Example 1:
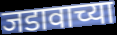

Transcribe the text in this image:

जडावाच्या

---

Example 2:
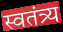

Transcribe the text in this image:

स्वतंत्र्य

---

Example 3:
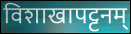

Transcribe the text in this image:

विशाखापट्टनम्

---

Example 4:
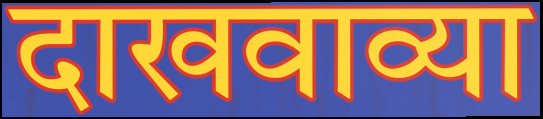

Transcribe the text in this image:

दाखवाव्या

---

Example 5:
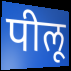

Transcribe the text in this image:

पीलू